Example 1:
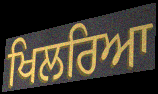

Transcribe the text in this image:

ਖਿਲਰਿਆ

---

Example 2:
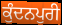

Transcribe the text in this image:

ਕੁੰਦਨਪੁਰੀ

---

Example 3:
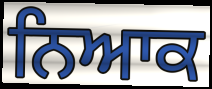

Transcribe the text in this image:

ਨਿਆਕ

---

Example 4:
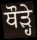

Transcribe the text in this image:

ਥੌੜ੍ਹੇ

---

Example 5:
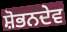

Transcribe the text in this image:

ਸ਼ੋਭਨਦੇਵ